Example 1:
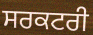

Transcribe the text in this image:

ਸਰਕਟਰੀ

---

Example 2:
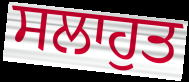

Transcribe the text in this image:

ਸਲਾਹੁਤ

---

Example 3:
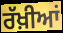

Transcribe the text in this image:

ਰੱਖ਼ੀਆਂ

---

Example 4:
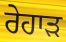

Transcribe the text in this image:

ਰੇਹਾੜ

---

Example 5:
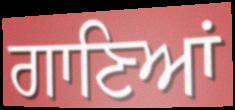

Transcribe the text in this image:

ਗਾਣਿਆਂ